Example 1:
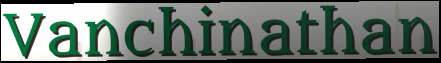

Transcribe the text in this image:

Vanchinathan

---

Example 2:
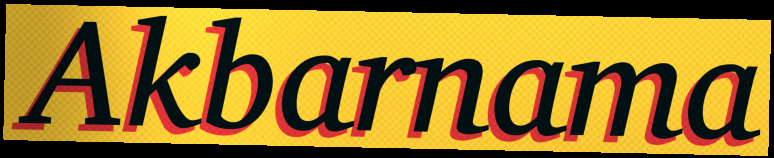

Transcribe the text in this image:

Akbarnama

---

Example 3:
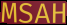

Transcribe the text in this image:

MSAH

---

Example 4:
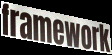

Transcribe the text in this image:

framework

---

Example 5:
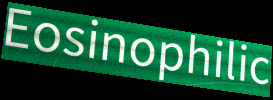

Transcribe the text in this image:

Eosinophilic